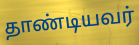
தாண்டியவர்